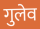
गुलेव